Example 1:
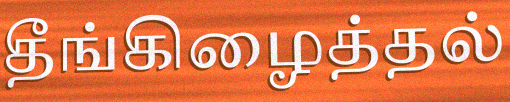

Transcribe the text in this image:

தீங்கிழைத்தல்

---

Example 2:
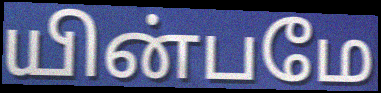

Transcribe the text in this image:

யின்பமே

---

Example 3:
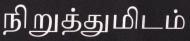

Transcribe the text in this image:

நிறுத்துமிடம்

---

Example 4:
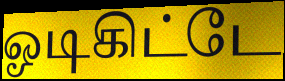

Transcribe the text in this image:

ஓடிகிட்டே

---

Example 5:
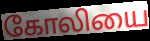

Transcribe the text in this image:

கோலியை